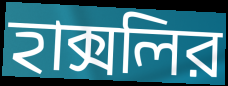
হাক্সলির